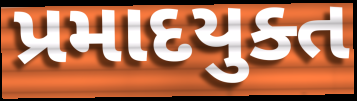
પ્રમાદયુક્ત